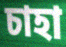
চাহা